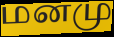
மனமு